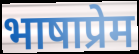
भाषाप्रेम